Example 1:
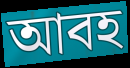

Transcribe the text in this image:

আবহ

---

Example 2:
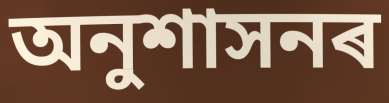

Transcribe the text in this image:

অনুশাসনৰ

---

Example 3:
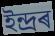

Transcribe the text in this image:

ইন্দ্ৰৰ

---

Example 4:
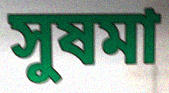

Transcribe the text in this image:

সুষমা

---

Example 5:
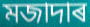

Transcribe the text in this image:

মজাদাৰ